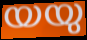
യയു